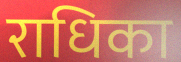
राधिका